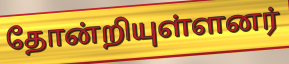
தோன்றியுள்ளனர்